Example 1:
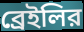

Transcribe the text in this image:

ব্রেইলির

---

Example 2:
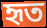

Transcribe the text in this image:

হৃত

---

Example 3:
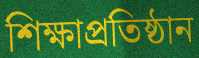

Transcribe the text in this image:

শিক্ষাপ্রতিষ্ঠান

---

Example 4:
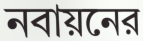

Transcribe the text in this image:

নবায়নের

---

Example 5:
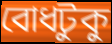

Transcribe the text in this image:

বোধটুকু